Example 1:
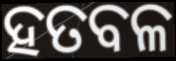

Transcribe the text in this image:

ହତବଳ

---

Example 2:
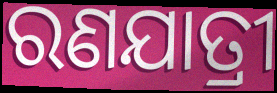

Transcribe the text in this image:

ରଣଯାତ୍ରୀ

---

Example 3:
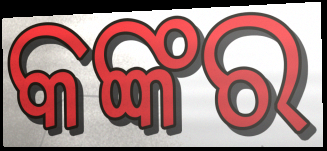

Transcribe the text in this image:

କଙ୍କର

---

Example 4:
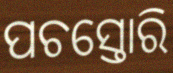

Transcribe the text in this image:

ପଚସ୍ତୋରି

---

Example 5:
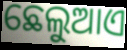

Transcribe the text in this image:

ଛେଲୁଆଏ